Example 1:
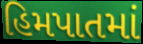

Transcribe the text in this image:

હિમપાતમાં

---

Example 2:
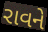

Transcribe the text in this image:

રાવને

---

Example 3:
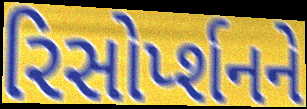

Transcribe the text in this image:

રિસોર્પ્શનને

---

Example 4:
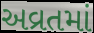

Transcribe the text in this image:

અવ્રતમાં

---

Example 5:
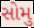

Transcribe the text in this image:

સોમુ